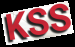
KSS